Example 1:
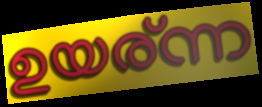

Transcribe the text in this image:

ഉയര്ന്ന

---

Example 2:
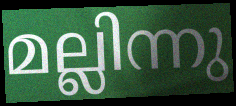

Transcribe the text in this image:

മല്ലിന്നു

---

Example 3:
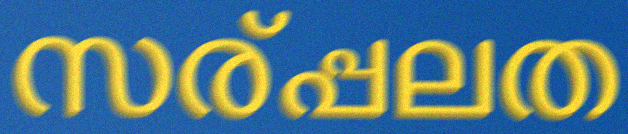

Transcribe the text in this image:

സര്പ്പലത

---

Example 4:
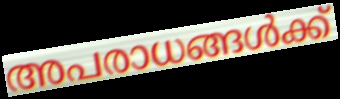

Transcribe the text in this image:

അപരാധങ്ങൾക്ക്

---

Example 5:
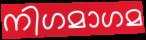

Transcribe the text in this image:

നിഗമാഗമ